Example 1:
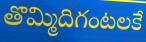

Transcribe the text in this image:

తొమ్మిదిగంటలకే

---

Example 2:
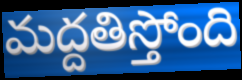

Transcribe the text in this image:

మద్దతిస్తోంది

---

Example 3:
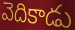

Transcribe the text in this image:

వెదికాడు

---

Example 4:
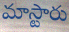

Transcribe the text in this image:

మాస్టారు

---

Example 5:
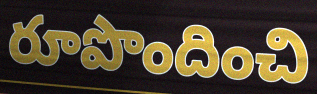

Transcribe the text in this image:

రూపొందించి